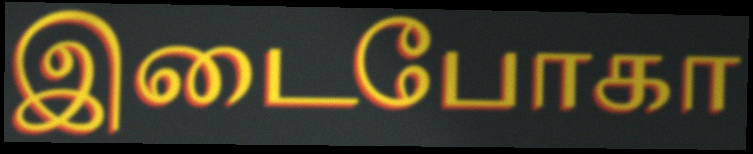
இடைபோகா